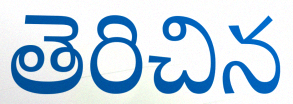
తెరిచిన